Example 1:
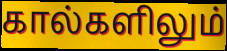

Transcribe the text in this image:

கால்களிலும்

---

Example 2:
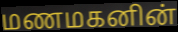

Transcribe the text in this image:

மணமகனின்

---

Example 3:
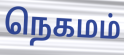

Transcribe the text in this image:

நெகமம்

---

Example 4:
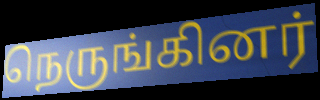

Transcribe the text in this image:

நெருங்கினர்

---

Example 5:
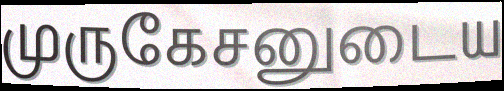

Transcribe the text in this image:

முருகேசனுடைய